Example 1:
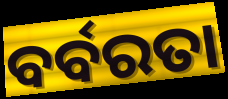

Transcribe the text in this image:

ବର୍ବରତା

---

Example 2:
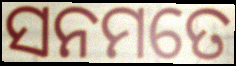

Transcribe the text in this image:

ସନମତେ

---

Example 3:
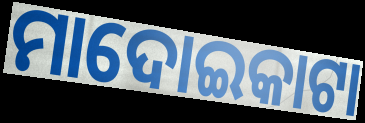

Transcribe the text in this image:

ମାଦୋଇକାଟା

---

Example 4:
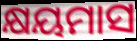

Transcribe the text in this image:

କ୍ଷୟମାସ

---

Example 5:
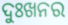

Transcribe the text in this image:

ଦୁଃଖନର